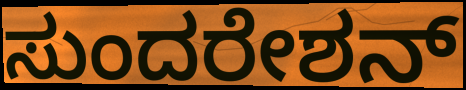
ಸುಂದರೇಶನ್